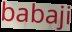
babaji